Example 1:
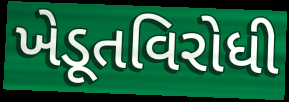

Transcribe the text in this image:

ખેડૂતવિરોધી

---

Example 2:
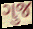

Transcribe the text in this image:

ગુજ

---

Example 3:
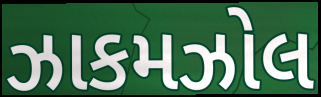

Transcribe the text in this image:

ઝાકમઝોલ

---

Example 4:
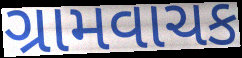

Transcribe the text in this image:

ગ્રામવાચક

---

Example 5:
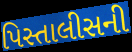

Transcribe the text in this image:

પિસ્તાલીસની